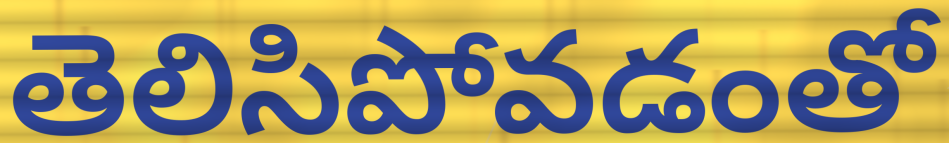
తెలిసిపోవడంతో